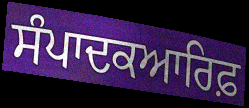
ਸੰਪਾਦਕਆਰਿਫ਼